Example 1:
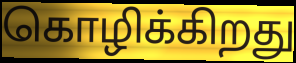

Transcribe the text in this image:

கொழிக்கிறது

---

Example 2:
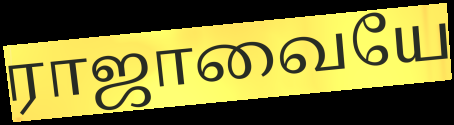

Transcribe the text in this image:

ராஜாவையே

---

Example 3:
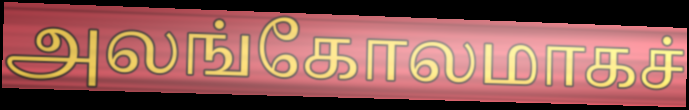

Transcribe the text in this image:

அலங்கோலமாகச்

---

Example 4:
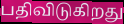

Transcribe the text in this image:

பதிவிடுகிறது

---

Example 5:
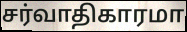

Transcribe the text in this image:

சர்வாதிகாரமா